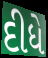
દીધે